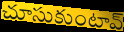
చూసుకుంటావ్